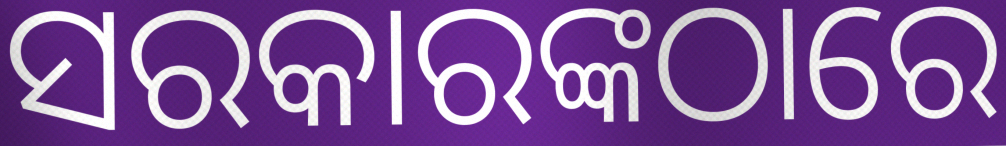
ସରକାରଙ୍କଠାରେ